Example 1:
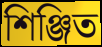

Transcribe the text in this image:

শিঞ্জিত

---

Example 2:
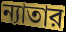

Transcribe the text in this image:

ন্যাতার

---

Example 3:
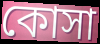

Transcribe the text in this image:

কোসা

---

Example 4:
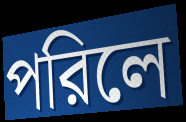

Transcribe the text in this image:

পরিলে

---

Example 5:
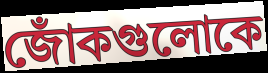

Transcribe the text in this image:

জোঁকগুলোকে